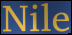
Nile